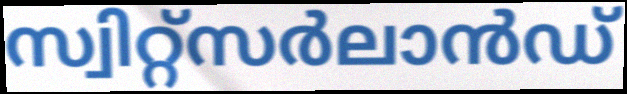
സ്വിറ്റ്സർലാൻഡ്